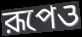
রূপেও